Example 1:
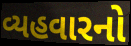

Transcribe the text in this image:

વ્યહવારનો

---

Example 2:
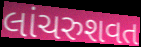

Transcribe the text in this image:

લાંચરુશવત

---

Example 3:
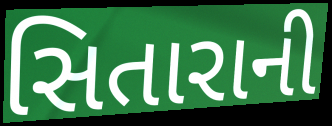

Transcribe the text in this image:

સિતારાની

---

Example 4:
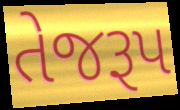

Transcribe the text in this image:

તેજરૂપ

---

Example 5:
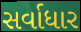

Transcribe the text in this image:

સર્વાધાર